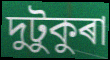
দুটুকুৰা